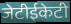
जेटीईकेटी